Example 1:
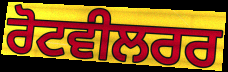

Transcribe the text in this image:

ਰੋਟਵੀਲਰਰ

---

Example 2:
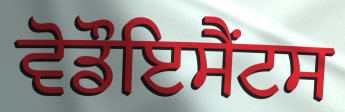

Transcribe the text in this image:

ਵੋਡੌਇਸੈਂਟਸ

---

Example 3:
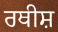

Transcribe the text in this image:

ਰਥੀਸ਼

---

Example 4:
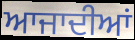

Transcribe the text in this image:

ਆਜਾਦੀਆਂ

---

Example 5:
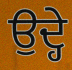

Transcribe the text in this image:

ਉਦ੍ਹੇ